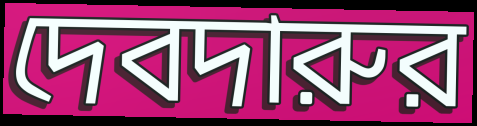
দেবদারুর